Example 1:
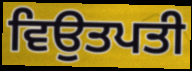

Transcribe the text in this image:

ਵਿਉਤਪਤੀ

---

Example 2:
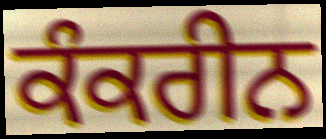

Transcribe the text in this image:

ਕੰਕਰੀਨ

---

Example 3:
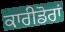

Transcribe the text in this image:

ਕਾਰੀਡੋਰਾਂ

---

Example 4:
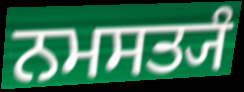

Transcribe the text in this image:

ਨਮਸਤ੍ਯੰ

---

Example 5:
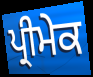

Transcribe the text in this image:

ਪ੍ਰੀਮੇਕ